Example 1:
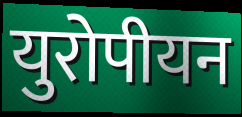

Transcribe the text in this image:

युरोपीयन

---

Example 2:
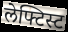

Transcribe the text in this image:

लेफ्टिस्ट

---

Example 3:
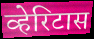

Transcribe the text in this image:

व्हेरिटास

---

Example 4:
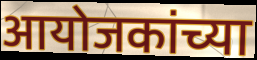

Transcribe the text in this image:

आयोजकांच्या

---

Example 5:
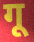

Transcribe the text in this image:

गू